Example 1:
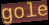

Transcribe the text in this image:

gole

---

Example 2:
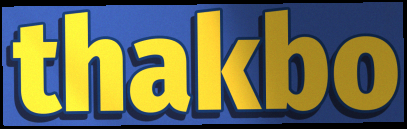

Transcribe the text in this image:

thakbo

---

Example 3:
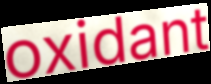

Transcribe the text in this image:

oxidant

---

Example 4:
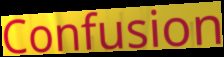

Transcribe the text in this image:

Confusion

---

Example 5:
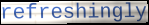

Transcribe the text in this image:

refreshingly